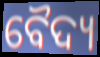
ବୈଦ୍ଯ